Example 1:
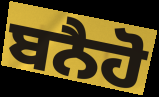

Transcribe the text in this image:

ਬਨੈਹੋ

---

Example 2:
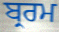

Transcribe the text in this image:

ਬ੍ਰਰਮ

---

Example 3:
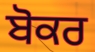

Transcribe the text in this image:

ਬੋਕਰ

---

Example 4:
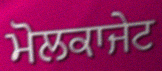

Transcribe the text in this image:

ਮੋਲਕਾਜੇਟ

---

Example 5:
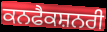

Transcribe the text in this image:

ਕਨਫੈਕਸ਼ਨਰੀ